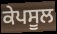
ਕੇਪਸੂਲ